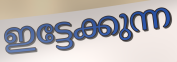
ഇട്ടേക്കുന്ന